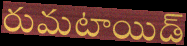
రుమటాయిడ్